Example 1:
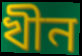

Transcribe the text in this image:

খীন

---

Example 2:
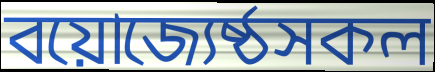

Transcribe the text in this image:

বয়োজ্যেষ্ঠসকল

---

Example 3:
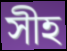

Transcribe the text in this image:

সীহ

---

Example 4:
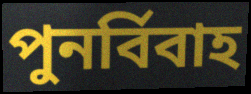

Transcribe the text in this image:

পুনৰ্বিবাহ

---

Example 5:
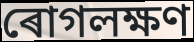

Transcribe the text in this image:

ৰোগলক্ষণ